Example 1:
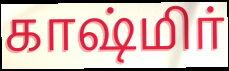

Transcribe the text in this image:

காஷ்மிர்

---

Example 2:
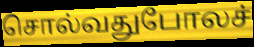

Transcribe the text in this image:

சொல்வதுபோலச்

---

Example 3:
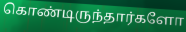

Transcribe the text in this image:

கொண்டிருந்தார்களோ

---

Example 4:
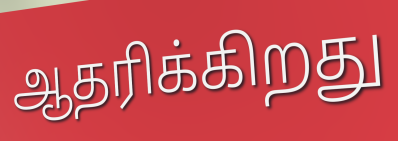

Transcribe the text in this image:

ஆதரிக்கிறது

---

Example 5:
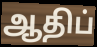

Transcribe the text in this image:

ஆதிப்